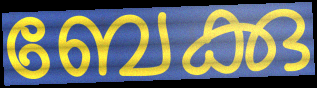
ബേക്കു